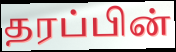
தரப்பின்